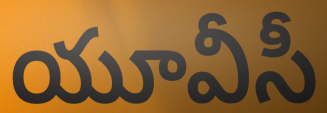
యూవీసీ